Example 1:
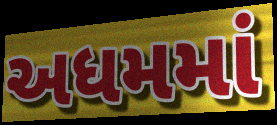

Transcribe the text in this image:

અધમમાં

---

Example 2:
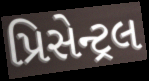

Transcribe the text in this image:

પ્રિસેન્ટ્રલ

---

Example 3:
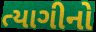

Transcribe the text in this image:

ત્યાગીનો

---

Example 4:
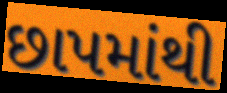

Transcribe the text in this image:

છાપમાંથી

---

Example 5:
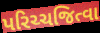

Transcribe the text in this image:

પરિચ્ચજિત્વા